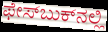
ಫೇಸ್‌ಬುಕ್‌ನಲ್ಲಿ